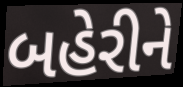
બહેરીને